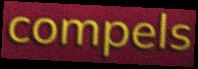
compels